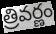
త్రివర్ణం